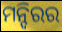
ମନ୍ଦିରର